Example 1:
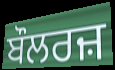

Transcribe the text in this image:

ਬੌਲਰਜ਼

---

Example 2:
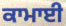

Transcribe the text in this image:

ਕਾਮਾਈ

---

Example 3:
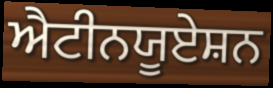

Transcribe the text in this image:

ਐਟੀਨਯੂਏਸ਼ਨ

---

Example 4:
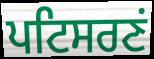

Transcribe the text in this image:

ਪਟਿਸਰਣਂ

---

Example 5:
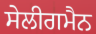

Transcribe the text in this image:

ਸੇਲੀਗਮੈਨ